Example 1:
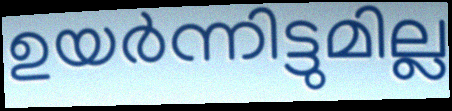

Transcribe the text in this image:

ഉയർന്നിട്ടുമില്ല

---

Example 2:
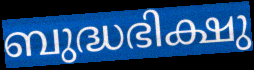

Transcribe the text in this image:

ബുദ്ധഭിക്ഷു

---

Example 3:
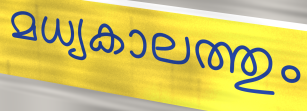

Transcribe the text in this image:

മധ്യകാലത്തും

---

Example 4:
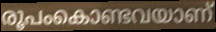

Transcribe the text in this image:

രൂപംകൊണ്ടവയാണ്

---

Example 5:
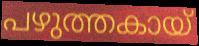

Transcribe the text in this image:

പഴുത്തകായ്